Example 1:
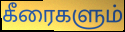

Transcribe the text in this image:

கீரைகளும்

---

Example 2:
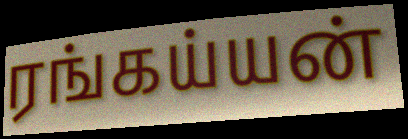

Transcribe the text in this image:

ரங்கய்யன்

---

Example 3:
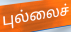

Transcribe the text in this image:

புல்லைச்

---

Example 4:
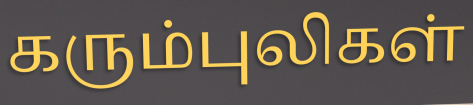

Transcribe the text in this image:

கரும்புலிகள்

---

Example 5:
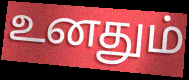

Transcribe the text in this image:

உனதும்